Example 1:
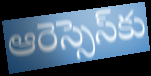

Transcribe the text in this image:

ఆరెస్సెస్‌కు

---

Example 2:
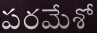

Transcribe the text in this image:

పరమేశో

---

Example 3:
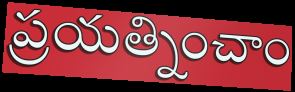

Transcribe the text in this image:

ప్రయత్నించాం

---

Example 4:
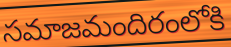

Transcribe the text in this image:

సమాజమందిరంలోకి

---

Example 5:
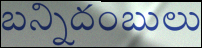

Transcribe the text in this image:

బన్నిదంబులు